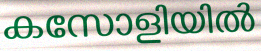
കസോളിയിൽ